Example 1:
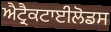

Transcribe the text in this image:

ਐਟ੍ਰੈਕਟਾਈਲੋਡਸ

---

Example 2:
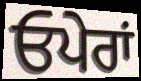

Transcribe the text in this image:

ਓਪੇਰਾਂ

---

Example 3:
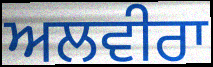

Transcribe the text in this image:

ਅਲਵੀਰਾ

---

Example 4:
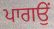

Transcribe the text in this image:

ਪਾਗਉਂ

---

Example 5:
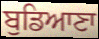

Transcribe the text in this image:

ਬੁਡਿਆਣਾ